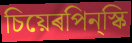
চিয়েৰপিন্‌স্কি